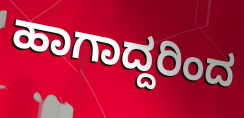
ಹಾಗಾದ್ದರಿಂದ